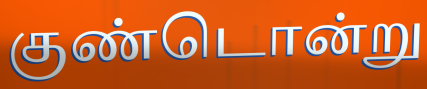
குண்டொன்று